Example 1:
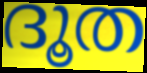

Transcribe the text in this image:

ദൂത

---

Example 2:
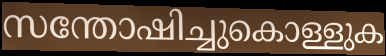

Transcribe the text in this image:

സന്തോഷിച്ചുകൊള്ളുക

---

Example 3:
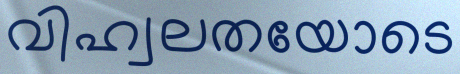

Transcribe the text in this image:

വിഹ്വലതയോടെ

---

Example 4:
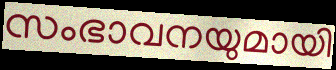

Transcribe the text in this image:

സംഭാവനയുമായി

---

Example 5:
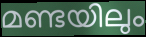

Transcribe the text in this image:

മണ്ടയിലും